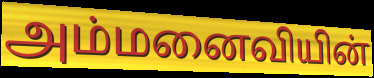
அம்மனைவியின்